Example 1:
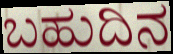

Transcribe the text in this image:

ಬಹುದಿನ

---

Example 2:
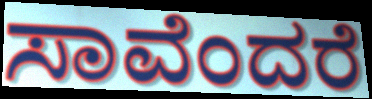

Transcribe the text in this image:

ಸಾವೆಂದರೆ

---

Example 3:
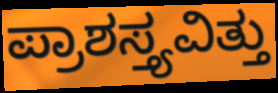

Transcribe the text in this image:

ಪ್ರಾಶಸ್ತ್ಯವಿತ್ತು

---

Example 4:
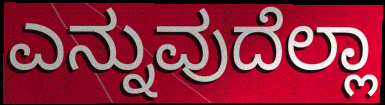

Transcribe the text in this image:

ಎನ್ನುವುದೆಲ್ಲಾ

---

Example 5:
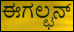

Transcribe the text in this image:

ಈಗಲ್ಟನ್